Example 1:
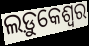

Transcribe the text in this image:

ଲଡ଼ୁକେଶ୍ୱର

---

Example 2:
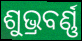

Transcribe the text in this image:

ଶୁଭ୍ରବର୍ଣ୍ଣ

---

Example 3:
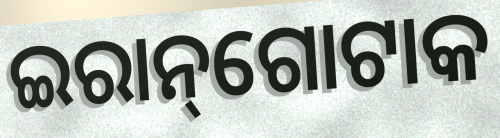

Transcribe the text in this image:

ଇରାନ୍‌ଗୋଟାକ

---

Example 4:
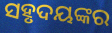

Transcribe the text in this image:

ସହୃଦୟଙ୍କର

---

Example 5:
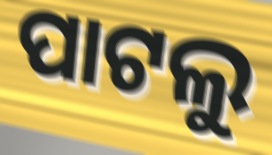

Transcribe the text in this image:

ପାଟଲୁ